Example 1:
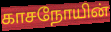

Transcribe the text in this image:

காசநோயின்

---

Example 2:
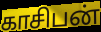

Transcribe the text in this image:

காசிபன்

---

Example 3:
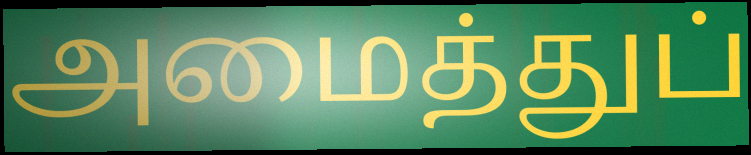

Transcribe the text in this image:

அமைத்துப்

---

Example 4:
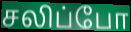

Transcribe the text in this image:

சலிப்போ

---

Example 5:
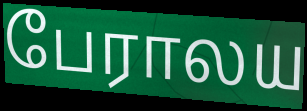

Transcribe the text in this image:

பேராலய